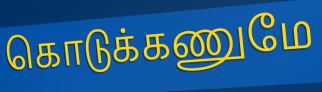
கொடுக்கணுமே